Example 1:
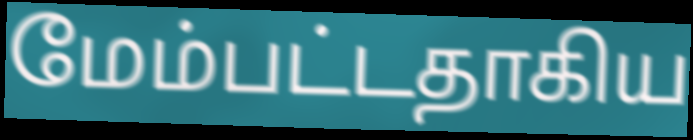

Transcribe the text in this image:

மேம்பட்டதாகிய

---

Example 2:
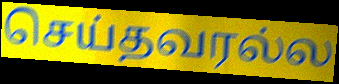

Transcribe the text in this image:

செய்தவரல்ல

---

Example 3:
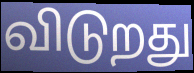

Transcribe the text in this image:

விடுறது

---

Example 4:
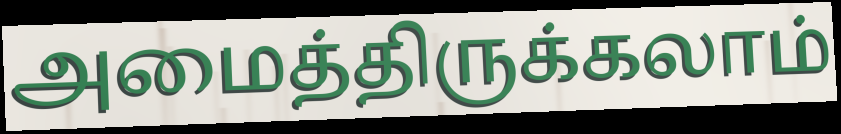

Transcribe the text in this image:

அமைத்திருக்கலாம்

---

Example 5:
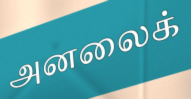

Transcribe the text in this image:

அனலைக்